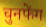
चुनफेंग